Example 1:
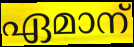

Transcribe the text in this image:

ഏമാന്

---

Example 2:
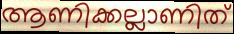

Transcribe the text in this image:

ആണിക്കല്ലാണിത്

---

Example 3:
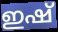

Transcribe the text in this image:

ഇഷ്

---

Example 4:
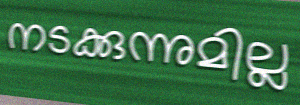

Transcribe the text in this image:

നടക്കുന്നുമില്ല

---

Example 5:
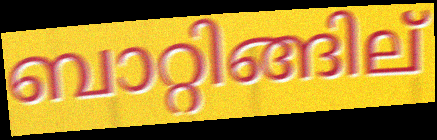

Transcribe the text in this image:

ബാറ്റിങ്ങില്